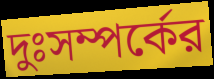
দুঃসম্পর্কের